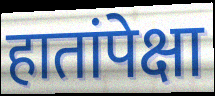
हातांपेक्षा